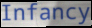
Infancy